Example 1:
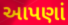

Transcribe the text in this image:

આપણાં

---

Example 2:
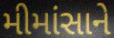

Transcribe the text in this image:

મીમાંસાને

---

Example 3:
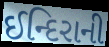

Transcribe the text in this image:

ઈન્દિરાની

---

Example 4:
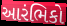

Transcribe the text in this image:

આરંભિકો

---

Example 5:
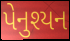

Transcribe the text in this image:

પેનુશ્યન